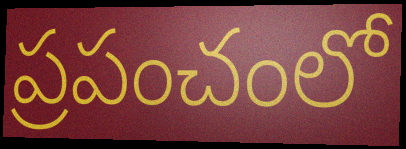
ప్రపంచంలో